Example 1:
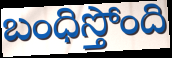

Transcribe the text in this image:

బంధిస్తోంది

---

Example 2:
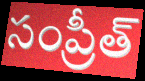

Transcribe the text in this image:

సంప్రీత్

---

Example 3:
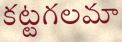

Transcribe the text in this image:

కట్టగలమా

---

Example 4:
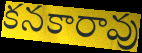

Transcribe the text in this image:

కనకారావు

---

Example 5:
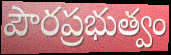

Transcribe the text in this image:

పౌరప్రభుత్వం